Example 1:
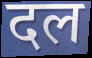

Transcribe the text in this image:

दल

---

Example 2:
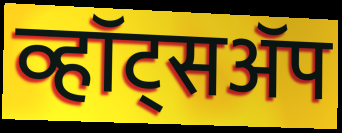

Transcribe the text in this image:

व्हॉट्सॲप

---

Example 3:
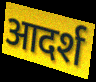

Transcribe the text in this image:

आदर्श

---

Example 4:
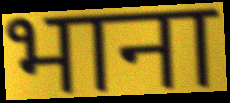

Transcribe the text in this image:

भाना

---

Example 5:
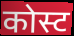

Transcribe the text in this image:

कोस्ट